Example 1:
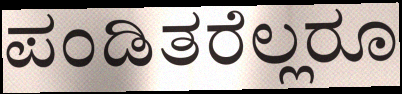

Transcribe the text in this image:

ಪಂಡಿತರೆಲ್ಲರೂ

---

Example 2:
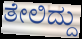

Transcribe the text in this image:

ತೇಲಿದ್ದು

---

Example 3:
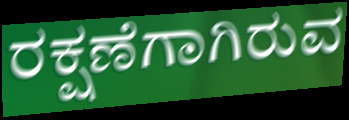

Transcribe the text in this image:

ರಕ್ಷಣೆಗಾಗಿರುವ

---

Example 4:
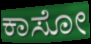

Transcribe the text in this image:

ಕಾಸೋ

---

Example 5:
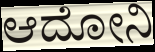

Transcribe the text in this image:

ಆದೋನಿ